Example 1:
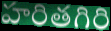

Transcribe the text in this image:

హరితగిరి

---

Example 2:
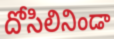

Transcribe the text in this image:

దోసిలినిండా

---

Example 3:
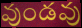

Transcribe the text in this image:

వుండవు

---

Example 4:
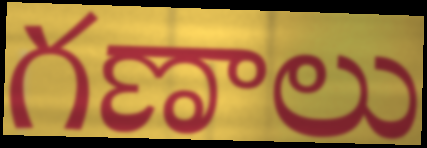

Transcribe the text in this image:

గణాలు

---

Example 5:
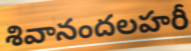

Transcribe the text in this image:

శివానందలహరీ